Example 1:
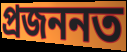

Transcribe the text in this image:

প্ৰজননত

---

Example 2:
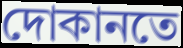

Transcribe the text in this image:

দোকানতে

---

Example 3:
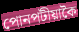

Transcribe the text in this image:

পোনপটীয়াকৈ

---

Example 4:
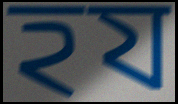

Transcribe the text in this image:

হয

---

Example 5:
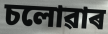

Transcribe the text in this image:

চলোৱাৰ